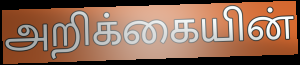
அறிக்கையின்